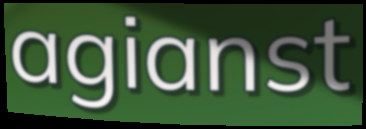
agianst